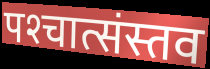
पश्चात्संस्तव